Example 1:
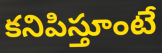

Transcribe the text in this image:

కనిపిస్తూంటే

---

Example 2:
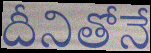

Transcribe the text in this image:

దీనితోనే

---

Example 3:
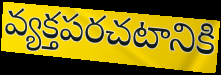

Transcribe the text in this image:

వ్యక్తపరచటానికి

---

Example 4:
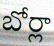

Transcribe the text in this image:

బోర్లా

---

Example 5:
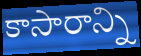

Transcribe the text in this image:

కాసారాన్ని